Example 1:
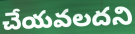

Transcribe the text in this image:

చేయవలదని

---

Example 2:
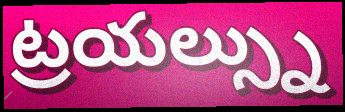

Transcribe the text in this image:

ట్రయల్స్ను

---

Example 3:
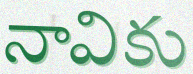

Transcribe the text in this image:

నావికు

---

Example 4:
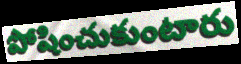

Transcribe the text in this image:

పోషించుకుంటారు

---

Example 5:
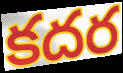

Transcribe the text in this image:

కదర